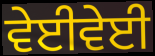
ਵੇਈਵੇਈ